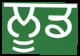
ਲੂਡ